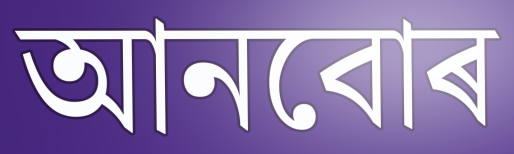
আনবোৰ